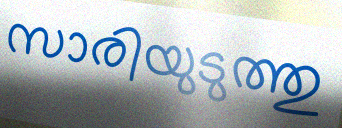
സാരിയുടുത്തു